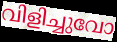
വിളിച്ചുവോ